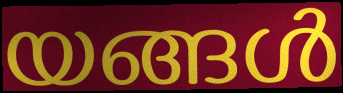
യങ്ങൾ